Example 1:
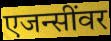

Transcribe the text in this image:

एजन्सींवर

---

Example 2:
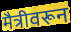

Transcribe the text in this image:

मैत्रीवरून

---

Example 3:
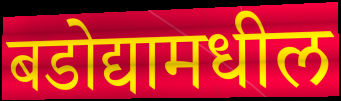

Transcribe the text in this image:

बडोद्यामधील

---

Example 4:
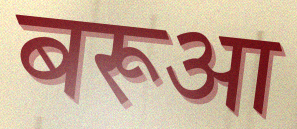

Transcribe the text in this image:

बरूआ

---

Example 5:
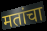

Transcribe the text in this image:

मतांचा